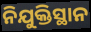
ନିଯୁକ୍ତିସ୍ଥାନ